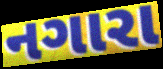
નગારા